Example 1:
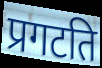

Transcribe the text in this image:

प्रगटति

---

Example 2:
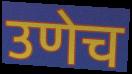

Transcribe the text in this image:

उणेच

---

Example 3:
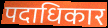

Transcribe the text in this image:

पदाधिकार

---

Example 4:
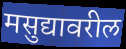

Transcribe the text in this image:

मसुद्यावरील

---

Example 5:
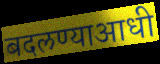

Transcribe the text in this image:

बदलण्याआधी